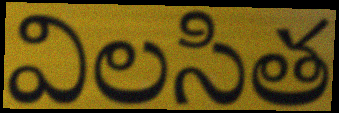
విలసిత